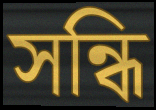
সন্ধি